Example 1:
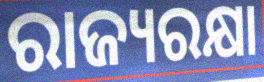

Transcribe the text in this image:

ରାଜ୍ୟରକ୍ଷା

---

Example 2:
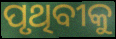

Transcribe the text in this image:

ପୃଥିବୀକୁ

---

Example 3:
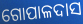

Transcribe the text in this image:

ଗୋପାଳଦାସ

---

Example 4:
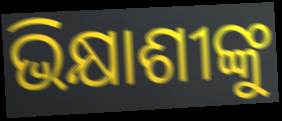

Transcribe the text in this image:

ଭିକ୍ଷାଶୀଙ୍କୁ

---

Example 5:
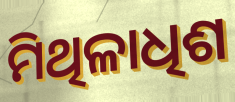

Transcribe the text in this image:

ମିଥିଳାଧିଶ